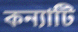
কন্যাটি